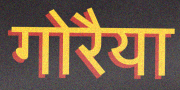
गोरैया